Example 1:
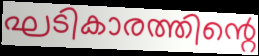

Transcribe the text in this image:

ഘടികാരത്തിന്റെ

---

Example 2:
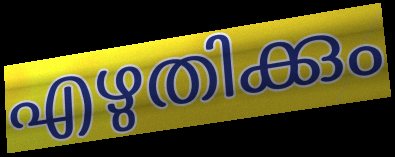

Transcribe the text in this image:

എഴുതിക്കും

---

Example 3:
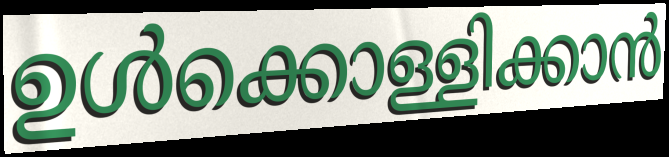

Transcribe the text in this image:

ഉൾക്കൊള്ളിക്കാൻ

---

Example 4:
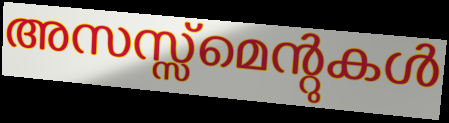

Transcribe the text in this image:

അസസ്സ്മെന്റുകൾ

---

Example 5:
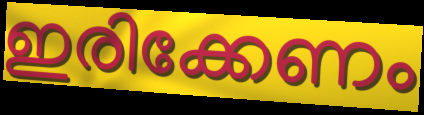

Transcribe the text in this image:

ഇരിക്കേണം